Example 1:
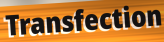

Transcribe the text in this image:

Transfection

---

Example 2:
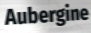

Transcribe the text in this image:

Aubergine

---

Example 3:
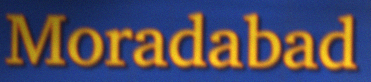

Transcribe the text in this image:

Moradabad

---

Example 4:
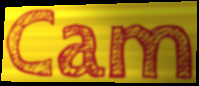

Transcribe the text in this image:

Cam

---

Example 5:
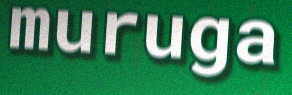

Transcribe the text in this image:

muruga